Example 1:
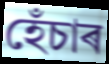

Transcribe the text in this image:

হেঁচাৰ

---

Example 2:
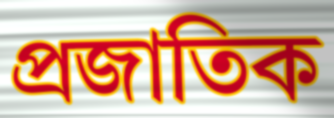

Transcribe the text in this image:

প্ৰজাতিক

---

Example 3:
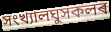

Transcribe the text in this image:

সংখ্যালঘুসকলৰ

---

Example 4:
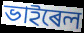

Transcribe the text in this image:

ভাইৰেল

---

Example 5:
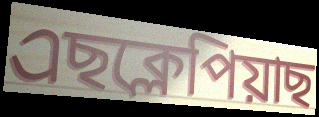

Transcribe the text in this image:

এছক্লেপিয়াছ